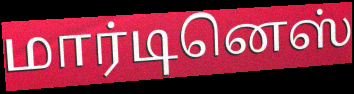
மார்டினெஸ்